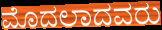
ಮೊದಲಾದವರು